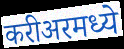
करीअरमध्ये